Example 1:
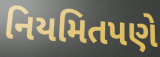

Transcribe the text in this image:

નિયમિતપણે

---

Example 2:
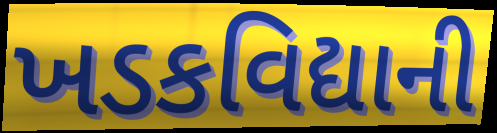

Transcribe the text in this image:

ખડકવિદ્યાની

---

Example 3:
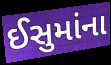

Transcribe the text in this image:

ઈસુમાંના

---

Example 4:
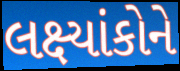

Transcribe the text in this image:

લક્ષ્યાંકોને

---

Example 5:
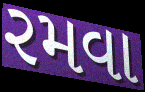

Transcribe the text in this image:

રમવા